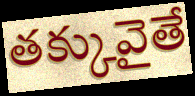
తక్కువైతే